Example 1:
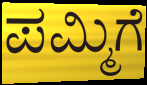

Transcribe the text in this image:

ಪಮ್ಮಿಗೆ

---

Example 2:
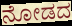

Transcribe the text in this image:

ನೋಡದ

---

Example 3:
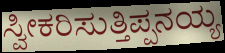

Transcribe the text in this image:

ಸ್ವೀಕರಿಸುತ್ತಿಪ್ಪನಯ್ಯ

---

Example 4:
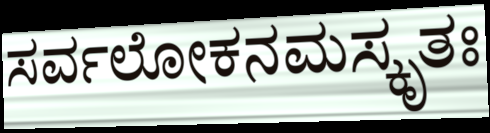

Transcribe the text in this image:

ಸರ್ವಲೋಕನಮಸ್ಕೃತಃ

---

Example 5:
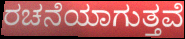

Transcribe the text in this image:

ರಚನೆಯಾಗುತ್ತವೆ